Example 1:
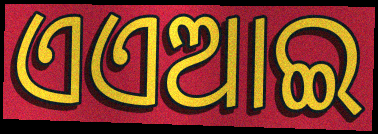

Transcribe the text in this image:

ଏଏଆଇ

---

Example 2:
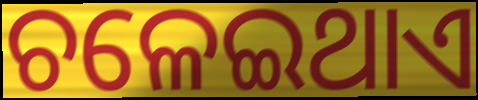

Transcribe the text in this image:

ଚଳେଇଥାଏ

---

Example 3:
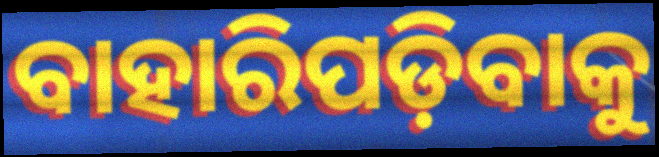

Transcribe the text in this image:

ବାହାରିପଡ଼ିବାକୁ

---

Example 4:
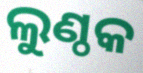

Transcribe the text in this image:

ଲୁଣ୍ଠକ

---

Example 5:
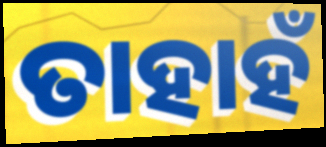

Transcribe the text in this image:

ତାହାହଁ